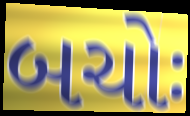
બચોઃ